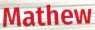
Mathew